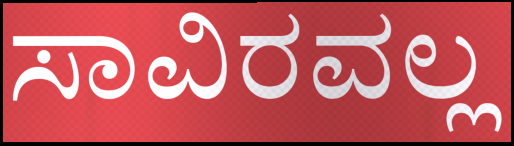
ಸಾವಿರವಲ್ಲ